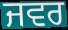
ਜਵਰ